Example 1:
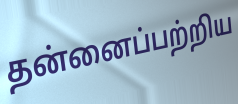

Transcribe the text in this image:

தன்னைப்பற்றிய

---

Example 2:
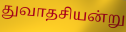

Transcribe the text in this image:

துவாதசியன்று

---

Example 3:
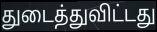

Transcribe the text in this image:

துடைத்துவிட்டது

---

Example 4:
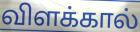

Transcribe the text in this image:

விளக்கால்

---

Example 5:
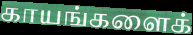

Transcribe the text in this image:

காயங்களைக்